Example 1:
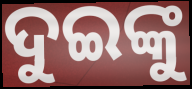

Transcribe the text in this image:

ଦୁଇଙ୍କୁ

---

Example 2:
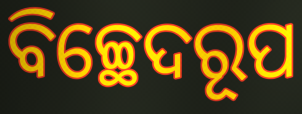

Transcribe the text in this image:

ବିଚ୍ଛେଦରୂପ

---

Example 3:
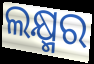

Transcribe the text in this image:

ଲକ୍ଷ୍ମର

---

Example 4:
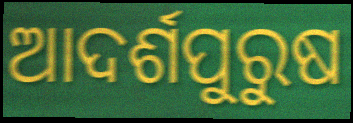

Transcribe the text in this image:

ଆଦର୍ଶପୁରୁଷ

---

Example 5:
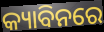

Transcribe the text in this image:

କ୍ୟାବିନରେ